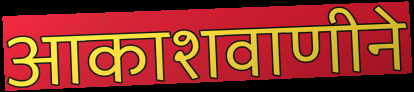
आकाशवाणीने